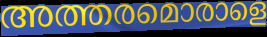
അത്തരമൊരാളെ